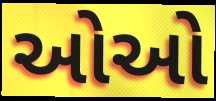
ઓઓ